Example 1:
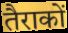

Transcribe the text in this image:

तैराकों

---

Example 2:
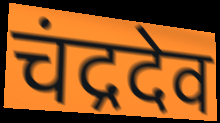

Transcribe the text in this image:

चंद्रदेव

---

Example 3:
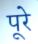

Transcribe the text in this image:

पूरे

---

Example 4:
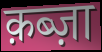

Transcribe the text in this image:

क़ब्ज़ा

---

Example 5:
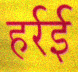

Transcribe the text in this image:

हर्रई